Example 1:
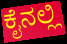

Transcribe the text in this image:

ಕೈನಲ್ಲಿ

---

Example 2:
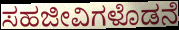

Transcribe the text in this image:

ಸಹಜೀವಿಗಳೊಡನೆ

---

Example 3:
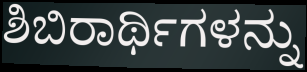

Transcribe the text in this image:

ಶಿಬಿರಾರ್ಥಿಗಳನ್ನು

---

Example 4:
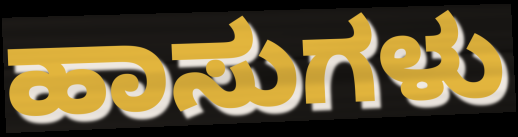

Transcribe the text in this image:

ಹಾಸುಗಳು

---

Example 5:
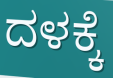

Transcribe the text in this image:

ದಳಕ್ಕೆ